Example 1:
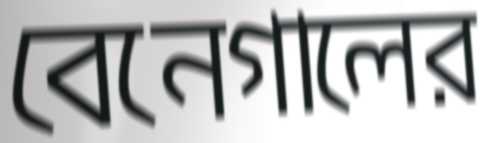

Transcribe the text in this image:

বেনেগালের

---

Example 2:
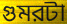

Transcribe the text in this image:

গুমরটা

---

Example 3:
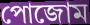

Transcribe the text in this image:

পোজোম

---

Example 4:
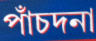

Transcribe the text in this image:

পাঁচদনা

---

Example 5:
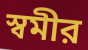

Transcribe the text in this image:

স্বমীর